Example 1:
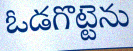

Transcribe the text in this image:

ఓడగొట్టెను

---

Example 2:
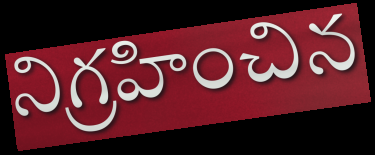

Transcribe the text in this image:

నిగ్రహించిన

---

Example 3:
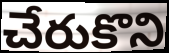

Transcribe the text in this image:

చేరుకొని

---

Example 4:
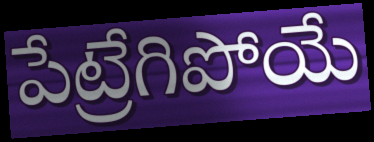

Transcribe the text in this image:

పేట్రేగిపోయే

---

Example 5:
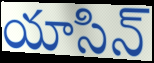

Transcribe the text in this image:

యాసిన్